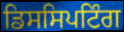
ਡਿਸਸਿਪਟਿੰਗ